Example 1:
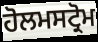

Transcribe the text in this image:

ਹੋਲਮਸਟ੍ਰੋਮ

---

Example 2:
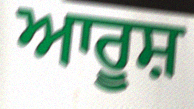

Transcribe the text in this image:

ਆਰੂਸ਼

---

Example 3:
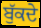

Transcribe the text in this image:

ਬੁੱਕਦੇ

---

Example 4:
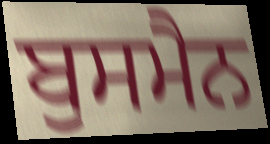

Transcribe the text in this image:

ਬੁਸਮੈਨ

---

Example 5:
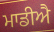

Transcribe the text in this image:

ਮਾਡੀਐ